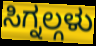
ಸಿಗ್ನಲ್ಗಳು